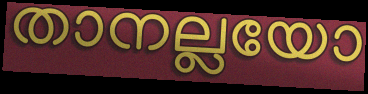
താനല്ലയോ